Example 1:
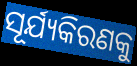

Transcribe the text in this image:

ସୂର୍ଯ୍ୟକିରଣକୁ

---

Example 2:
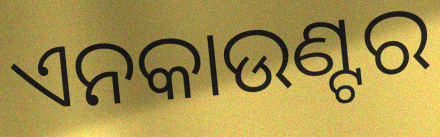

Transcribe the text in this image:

ଏନକାଉଣ୍ଟର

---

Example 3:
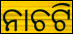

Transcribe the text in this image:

ନାଚଟି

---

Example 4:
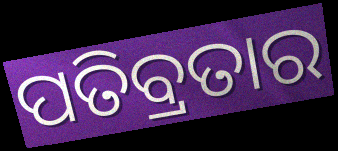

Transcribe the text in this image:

ପତିବ୍ରତାର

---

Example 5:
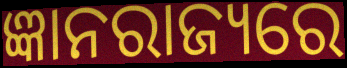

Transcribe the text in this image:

ଜ୍ଞାନରାଜ୍ୟରେ